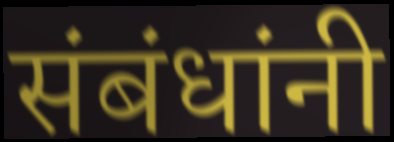
संबंधांनी